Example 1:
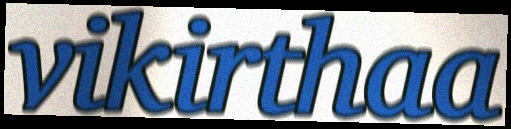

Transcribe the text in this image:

vikirthaa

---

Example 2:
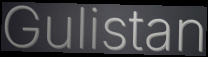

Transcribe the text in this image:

Gulistan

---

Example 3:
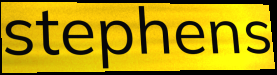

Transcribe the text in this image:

stephens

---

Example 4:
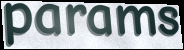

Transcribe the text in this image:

params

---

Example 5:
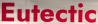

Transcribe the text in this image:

Eutectic